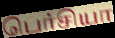
பெர்சியா